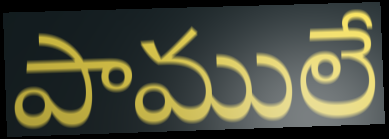
పాములే